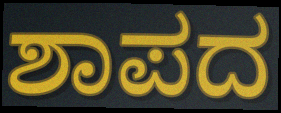
ಶಾಪದ